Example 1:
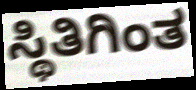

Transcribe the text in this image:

ಸ್ಥಿತಿಗಿಂತ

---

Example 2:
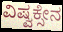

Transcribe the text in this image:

ವಿಷ್ವಕ್ಸೇನ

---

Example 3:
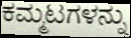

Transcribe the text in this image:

ಕಮ್ಮಟಗಳನ್ನು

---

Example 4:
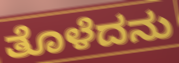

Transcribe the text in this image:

ತೊಳೆದನು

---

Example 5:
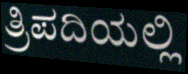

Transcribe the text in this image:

ತ್ರಿಪದಿಯಲ್ಲಿ